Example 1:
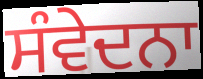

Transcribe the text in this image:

ਸੰਵੇਦਨਾ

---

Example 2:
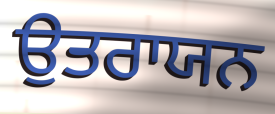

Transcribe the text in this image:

ਉਤਰਾਯਨ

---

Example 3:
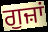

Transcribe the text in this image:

ਗੁਜ਼ਾਂ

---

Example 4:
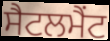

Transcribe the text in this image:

ਸੈਟਲਮੈਂਟ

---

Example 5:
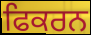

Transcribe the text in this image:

ਫਿਕਰਨ